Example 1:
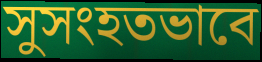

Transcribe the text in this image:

সুসংহতভাবে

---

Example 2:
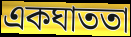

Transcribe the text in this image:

একঘাততা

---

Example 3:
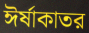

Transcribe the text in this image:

ঈর্ষাকাতর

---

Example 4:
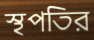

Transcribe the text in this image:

স্থপতির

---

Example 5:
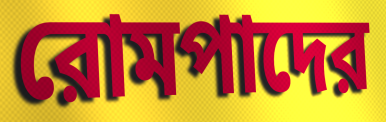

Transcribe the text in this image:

রোমপাদের